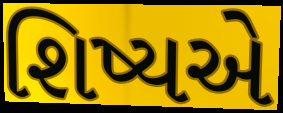
શિષ્યએ